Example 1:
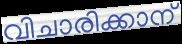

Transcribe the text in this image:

വിചാരിക്കാന്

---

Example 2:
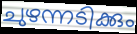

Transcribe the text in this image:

ചുഴന്നടിക്കും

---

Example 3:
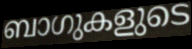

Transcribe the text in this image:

ബാഗുകളുടെ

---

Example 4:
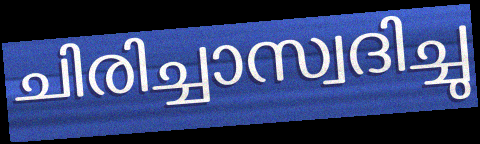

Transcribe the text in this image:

ചിരിച്ചാസ്വദിച്ചു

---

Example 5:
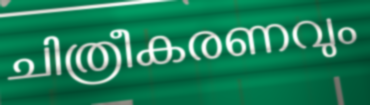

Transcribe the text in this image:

ചിത്രീകരണവും